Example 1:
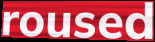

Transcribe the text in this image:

roused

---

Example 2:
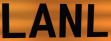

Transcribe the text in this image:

LANL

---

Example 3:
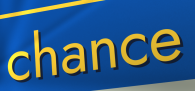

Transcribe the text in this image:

chance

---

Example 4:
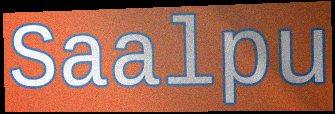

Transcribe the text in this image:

Saalpu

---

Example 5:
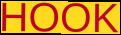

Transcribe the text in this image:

HOOK